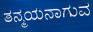
ತನ್ಮಯನಾಗುವ